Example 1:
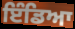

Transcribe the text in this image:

ਇੰਡਿਆ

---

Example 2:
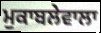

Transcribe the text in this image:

ਮੁਕਾਬਲੇਵਾਲਾ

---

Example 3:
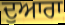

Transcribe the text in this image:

ਦੁਆਰਾ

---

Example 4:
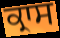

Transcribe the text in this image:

ਕ੍ਰਾਸ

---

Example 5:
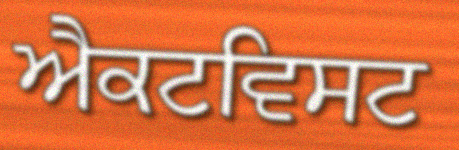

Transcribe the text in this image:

ਐਕਟਵਿਸਟ